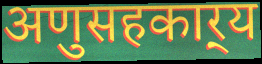
अणुसहकार्य